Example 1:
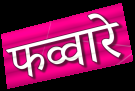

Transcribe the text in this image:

फव्वारे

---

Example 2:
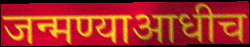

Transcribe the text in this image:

जन्मण्याआधीच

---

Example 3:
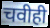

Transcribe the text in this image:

चवीही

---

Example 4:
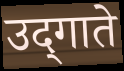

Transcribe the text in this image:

उद्‌गाते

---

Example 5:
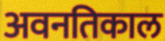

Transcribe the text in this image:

अवनतिकाल